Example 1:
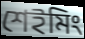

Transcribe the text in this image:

শেইমিং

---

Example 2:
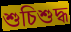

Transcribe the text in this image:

শুচিশুদ্ধ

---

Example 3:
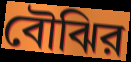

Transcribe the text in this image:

বৌঝির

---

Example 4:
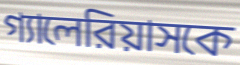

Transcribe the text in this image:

গ্যালেরিয়াসকে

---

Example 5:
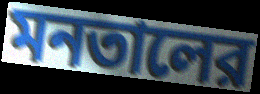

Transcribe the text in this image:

মনতালের